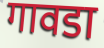
गावडा